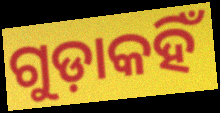
ଗୁଡ଼ାକହିଁ